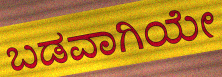
ಬಡವಾಗಿಯೇ